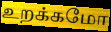
உறக்கமோ